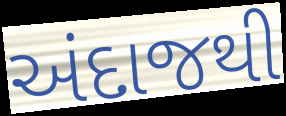
અંદાજથી